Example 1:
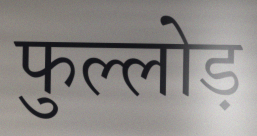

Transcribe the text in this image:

फुल्लोड़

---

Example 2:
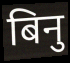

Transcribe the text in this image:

बिनु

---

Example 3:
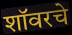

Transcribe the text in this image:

शॉवरचे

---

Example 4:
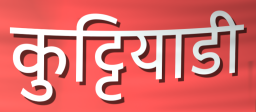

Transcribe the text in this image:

कुट्टियाडी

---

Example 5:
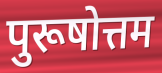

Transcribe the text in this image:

पुरूषोत्तम